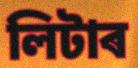
লিটাৰ